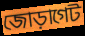
জোড়াগেট